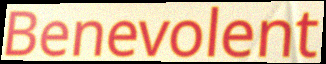
Benevolent